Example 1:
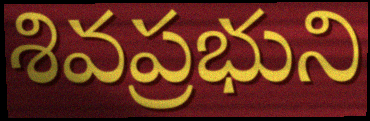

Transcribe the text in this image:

శివప్రభుని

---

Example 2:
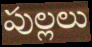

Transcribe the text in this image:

పుల్లలు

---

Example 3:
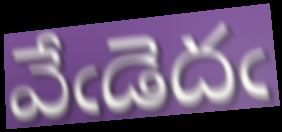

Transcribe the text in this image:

వేఁడెదఁ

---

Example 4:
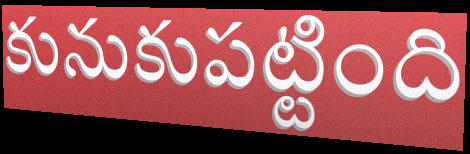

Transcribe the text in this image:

కునుకుపట్టింది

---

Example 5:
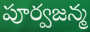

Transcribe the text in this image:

పూర్వజన్మ